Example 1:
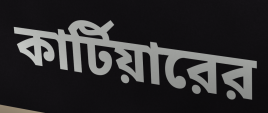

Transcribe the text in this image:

কার্টিয়ারের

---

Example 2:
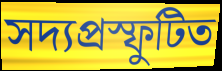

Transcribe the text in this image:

সদ্যপ্রস্ফুটিত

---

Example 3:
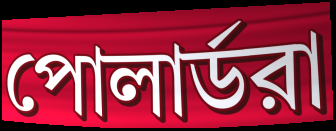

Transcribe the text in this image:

পোলার্ডরা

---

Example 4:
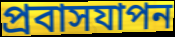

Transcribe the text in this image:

প্রবাসযাপন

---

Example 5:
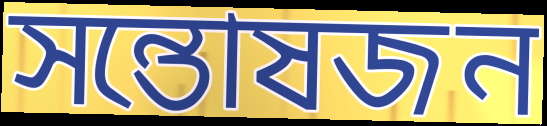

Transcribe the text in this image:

সন্তোষজন